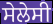
ਸੇਲੇਸੀ